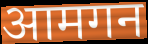
आमगन